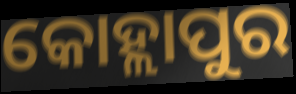
କୋହ୍ଲାପୁର